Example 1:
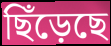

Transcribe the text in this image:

ছিঁড়েছে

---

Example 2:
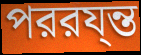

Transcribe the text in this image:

পররয্ন্ত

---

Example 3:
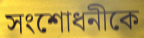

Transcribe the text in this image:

সংশোধনীকে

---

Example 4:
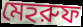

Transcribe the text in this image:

মেহরুফ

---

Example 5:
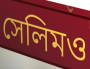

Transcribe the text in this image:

সেলিমও